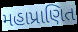
મહાપ્રાણિત